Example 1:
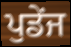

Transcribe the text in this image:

ਪੁਡੇਂਜ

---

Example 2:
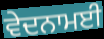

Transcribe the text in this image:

ਵੇਦਨਾਮਈ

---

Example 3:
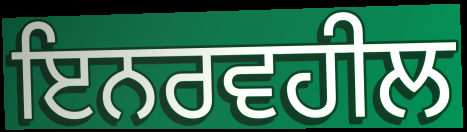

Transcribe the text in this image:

ਇਨਰਵਹੀਲ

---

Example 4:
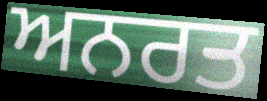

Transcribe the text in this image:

ਅਨਰਤ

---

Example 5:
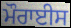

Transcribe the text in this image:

ਮੌਰਾਈਸ